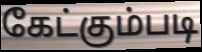
கேட்கும்படி